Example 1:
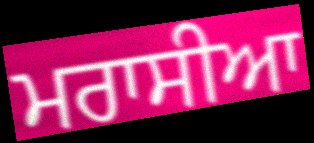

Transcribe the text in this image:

ਮਰਾਸੀਆ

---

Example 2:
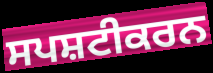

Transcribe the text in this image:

ਸਪਸ਼ਟੀਕਰਨ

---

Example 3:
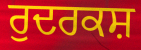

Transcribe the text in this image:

ਰੁਦਰਕਸ਼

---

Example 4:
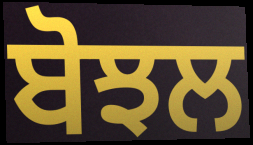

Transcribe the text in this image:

ਬੋਝਲ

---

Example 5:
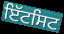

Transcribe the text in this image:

ਇੱਟਸਿਟ